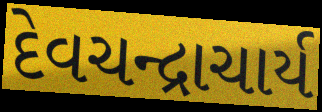
દેવચન્દ્રાચાર્ય